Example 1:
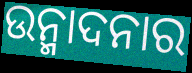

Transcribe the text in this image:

ଉନ୍ମାଦନାର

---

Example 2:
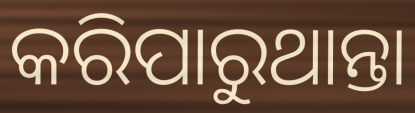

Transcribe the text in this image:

କରିପାରୁଥାନ୍ତା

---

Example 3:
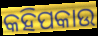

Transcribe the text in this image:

କହିପକାଉ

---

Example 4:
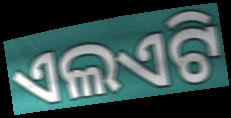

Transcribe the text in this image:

ଏଲଏଟି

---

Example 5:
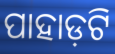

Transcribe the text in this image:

ପାହାଡ଼ଟି